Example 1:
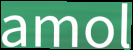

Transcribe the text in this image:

amol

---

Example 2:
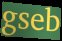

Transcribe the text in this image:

gseb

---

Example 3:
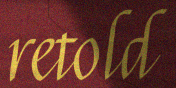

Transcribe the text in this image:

retold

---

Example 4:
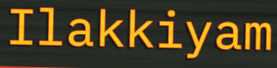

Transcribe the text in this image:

Ilakkiyam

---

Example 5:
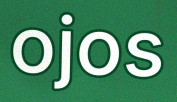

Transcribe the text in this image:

ojos